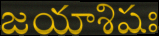
జయాశిషః